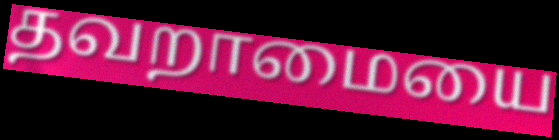
தவறாமையை